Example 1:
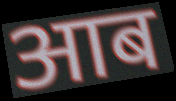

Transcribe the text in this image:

आब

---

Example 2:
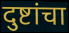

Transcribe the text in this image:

दुष्टांचा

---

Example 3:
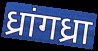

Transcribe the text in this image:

ध्रांगध्रा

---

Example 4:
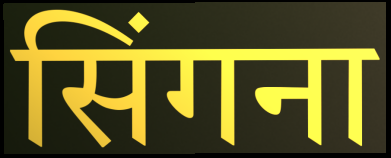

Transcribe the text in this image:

सिंगना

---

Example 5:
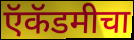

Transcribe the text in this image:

ऍकॅडमीचा